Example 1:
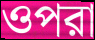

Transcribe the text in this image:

ওপরা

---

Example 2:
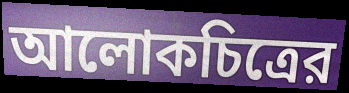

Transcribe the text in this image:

আলোকচিত্রের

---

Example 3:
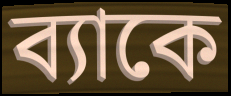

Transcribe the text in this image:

ব্যাকে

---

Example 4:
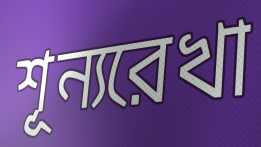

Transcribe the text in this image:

শূন্যরেখা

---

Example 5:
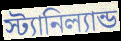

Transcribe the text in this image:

স্ট্যানিল্যান্ড